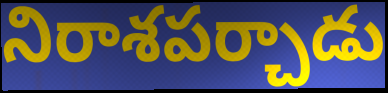
నిరాశపర్చాడు